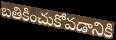
బతికించుకోవడానికి